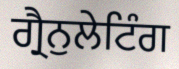
ਗ੍ਰੈਨੁਲੇਟਿੰਗ